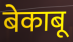
बेकाबू